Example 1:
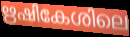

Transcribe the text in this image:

ഋഷികേശിലെ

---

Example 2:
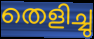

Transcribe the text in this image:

തെളിച്ചു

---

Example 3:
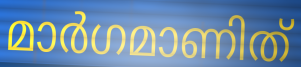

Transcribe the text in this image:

മാർഗമാണിത്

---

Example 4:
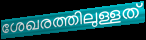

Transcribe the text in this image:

ശേഖരത്തിലുള്ളത്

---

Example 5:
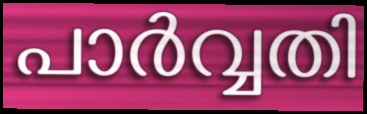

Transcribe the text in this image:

പാർവ്വതി